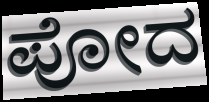
ಪೋದ